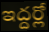
ఇద్దర్లో